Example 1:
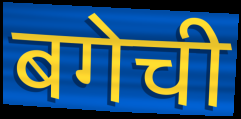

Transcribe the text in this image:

बगेची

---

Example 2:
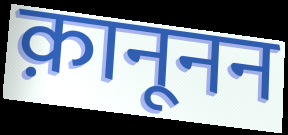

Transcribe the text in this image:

क़ानूनन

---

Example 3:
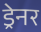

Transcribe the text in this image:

ड्रेनर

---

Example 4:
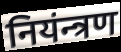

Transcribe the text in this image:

नियंन्त्रण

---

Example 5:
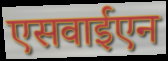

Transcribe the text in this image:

एसवाईएन